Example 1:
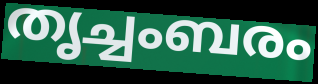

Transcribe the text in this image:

തൃച്ചംബരം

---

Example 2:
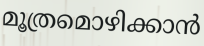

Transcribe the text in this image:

മൂത്രമൊഴിക്കാൻ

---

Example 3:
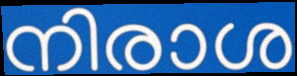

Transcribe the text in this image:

നിരാശ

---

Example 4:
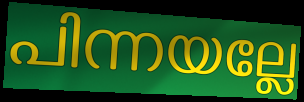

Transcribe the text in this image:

പിന്നയല്ലേ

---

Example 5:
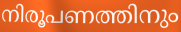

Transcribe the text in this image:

നിരൂപണത്തിനും